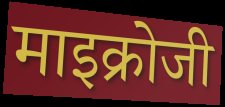
माइक्रोजी